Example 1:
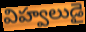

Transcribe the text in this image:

విహ్వలుడై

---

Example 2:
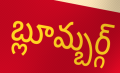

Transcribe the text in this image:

బ్లూమ్బర్గ్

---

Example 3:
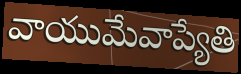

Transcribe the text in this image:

వాయుమేవాప్యేతి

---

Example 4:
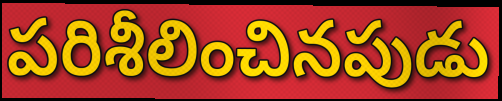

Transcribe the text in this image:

పరిశీలించినపుడు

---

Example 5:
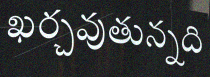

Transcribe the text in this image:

ఖర్చవుతున్నది